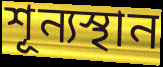
শূন্যস্থান